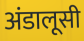
अंडालूसी